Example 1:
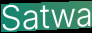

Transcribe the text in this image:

Satwa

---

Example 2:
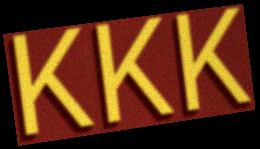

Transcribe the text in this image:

KKK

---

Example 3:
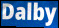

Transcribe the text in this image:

Dalby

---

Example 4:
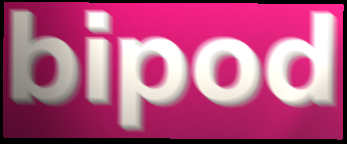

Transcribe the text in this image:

bipod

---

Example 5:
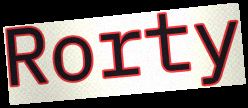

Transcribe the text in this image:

Rorty